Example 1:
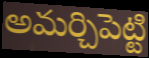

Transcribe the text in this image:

అమర్చిపెట్టి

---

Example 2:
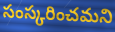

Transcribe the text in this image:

సంస్కరించమని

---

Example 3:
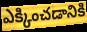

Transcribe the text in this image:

ఎక్కించడానికి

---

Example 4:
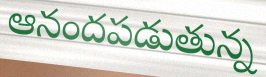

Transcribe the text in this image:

ఆనందపడుతున్న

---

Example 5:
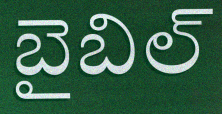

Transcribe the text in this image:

బైబిల్